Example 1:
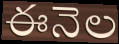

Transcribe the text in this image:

ఈనెల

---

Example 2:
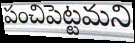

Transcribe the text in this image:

పంచిపెట్టమని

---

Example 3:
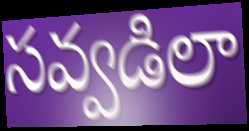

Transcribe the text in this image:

సవ్వడిలా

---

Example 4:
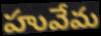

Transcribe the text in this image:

హువేమ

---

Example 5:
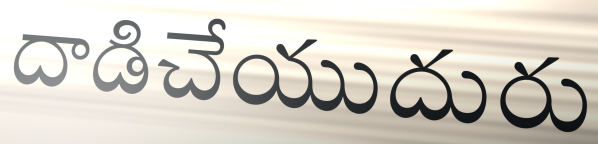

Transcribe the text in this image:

దాడిచేయుదురు